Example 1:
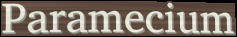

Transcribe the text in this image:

Paramecium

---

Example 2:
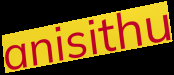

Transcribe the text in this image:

anisithu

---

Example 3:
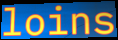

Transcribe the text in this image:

loins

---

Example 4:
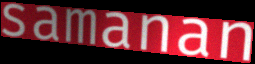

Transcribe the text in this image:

samanan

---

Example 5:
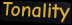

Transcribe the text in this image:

Tonality